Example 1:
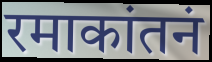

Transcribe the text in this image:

रमाकांतनं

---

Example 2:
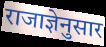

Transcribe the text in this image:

राजाज्ञेनुसार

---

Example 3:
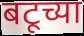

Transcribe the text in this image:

बटूच्या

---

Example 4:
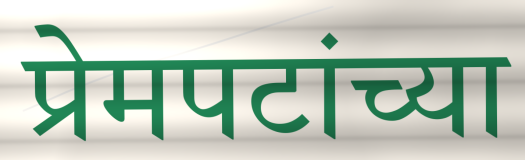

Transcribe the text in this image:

प्रेमपटांच्या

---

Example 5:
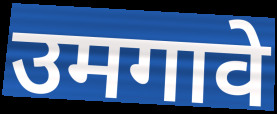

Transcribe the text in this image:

उमगावे